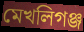
মেখলিগঞ্জ